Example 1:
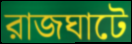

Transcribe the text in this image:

রাজঘাটে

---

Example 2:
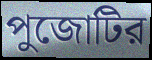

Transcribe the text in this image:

পুজোটির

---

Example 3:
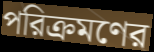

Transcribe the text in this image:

পরিক্রমণের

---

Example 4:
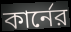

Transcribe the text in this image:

কার্নের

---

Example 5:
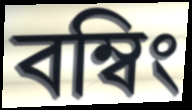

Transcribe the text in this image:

বম্বিং